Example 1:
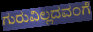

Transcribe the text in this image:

ಗುರುವಿಲ್ಲದವಂಗೆ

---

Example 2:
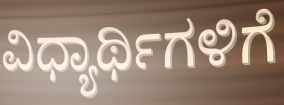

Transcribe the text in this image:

ವಿಧ್ಯಾರ್ಥಿಗಳಿಗೆ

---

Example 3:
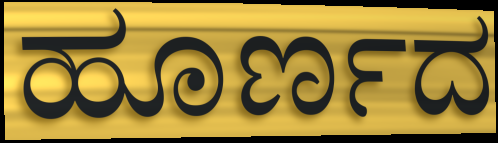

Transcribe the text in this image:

ಹೂರ್ಣದ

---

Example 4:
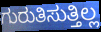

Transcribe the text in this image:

ಗುರುತಿಸುತ್ತಿಲ್ಲ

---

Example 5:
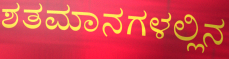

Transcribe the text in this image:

ಶತಮಾನಗಳಲ್ಲಿನ